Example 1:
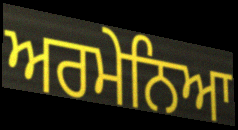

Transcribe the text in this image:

ਅਰਮੇਨਿਆ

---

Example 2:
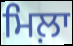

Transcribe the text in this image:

ਮਿਲ਼ਾ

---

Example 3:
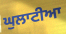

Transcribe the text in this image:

ਘੁਲਾਟੀਆ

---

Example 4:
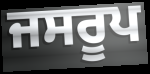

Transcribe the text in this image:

ਜਸਰੂਪ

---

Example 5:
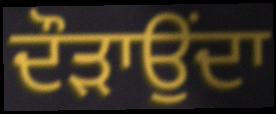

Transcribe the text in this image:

ਦੌੜਾਉਂਦਾ